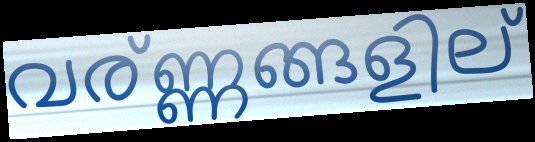
വര്ണ്ണങ്ങളില്